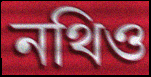
নথিও